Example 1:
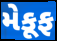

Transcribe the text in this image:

મેકૂફ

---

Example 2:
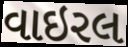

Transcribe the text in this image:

વાઇરલ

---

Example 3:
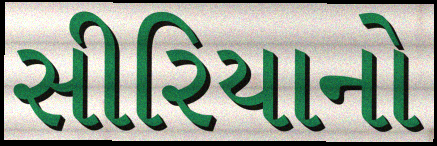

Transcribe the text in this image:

સીરિયાનો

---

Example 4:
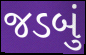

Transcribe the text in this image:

જડબું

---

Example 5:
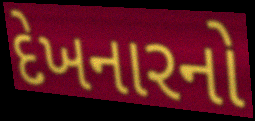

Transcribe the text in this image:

દેખનારનો